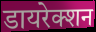
डायरेक्शन